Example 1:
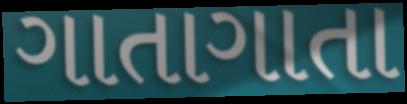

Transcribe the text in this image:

ગાતાગાતા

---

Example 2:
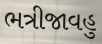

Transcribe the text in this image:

ભત્રીજાવહુ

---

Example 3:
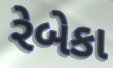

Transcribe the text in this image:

રેબેકા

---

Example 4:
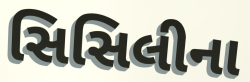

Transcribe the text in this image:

સિસિલીના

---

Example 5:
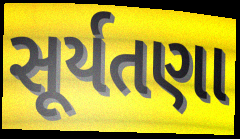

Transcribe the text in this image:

સૂર્યતણા